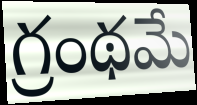
గ్రంథమే